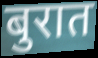
बुरात